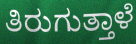
ತಿರುಗುತ್ತಾಳೆ